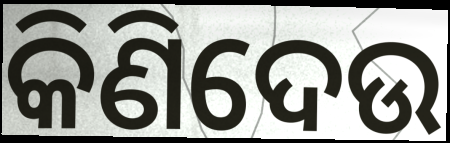
କିଣିଦେଉ